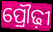
ପ୍ରୌଢ଼ୀ